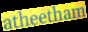
atheetham